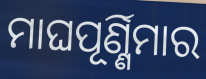
ମାଘପୂର୍ଣ୍ଣିମାର